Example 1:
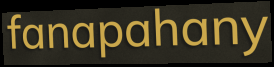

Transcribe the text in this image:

fanapahany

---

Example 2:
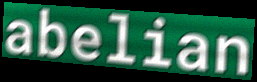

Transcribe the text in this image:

abelian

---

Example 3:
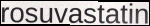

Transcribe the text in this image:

rosuvastatin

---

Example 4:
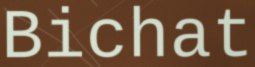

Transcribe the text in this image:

Bichat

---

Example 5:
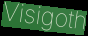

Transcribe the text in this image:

Visigoth